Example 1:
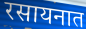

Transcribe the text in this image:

रसायनात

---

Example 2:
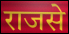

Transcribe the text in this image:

राजसे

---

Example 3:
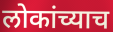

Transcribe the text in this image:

लोकांच्याच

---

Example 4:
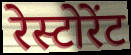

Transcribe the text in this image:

रेस्टोरेंट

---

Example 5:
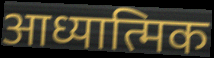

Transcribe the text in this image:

आध्यात्मिक